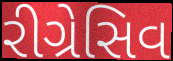
રીગ્રેસિવ